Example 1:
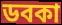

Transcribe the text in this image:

ডবকা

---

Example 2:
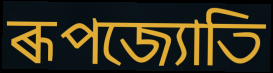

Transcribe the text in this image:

ৰূপজ্যোতি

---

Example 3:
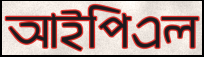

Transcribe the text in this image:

আইপিএল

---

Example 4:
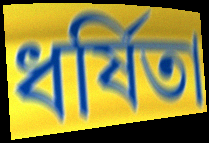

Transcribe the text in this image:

ধৰ্ষিতা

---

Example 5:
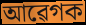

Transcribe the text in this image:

আৱেগক